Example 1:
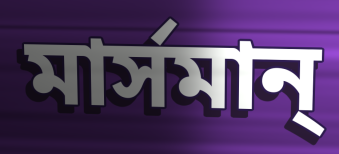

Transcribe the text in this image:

মার্সমান্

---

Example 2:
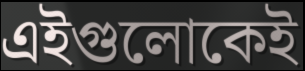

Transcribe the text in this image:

এইগুলোকেই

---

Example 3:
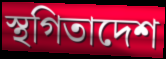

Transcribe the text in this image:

স্থগিতাদেশ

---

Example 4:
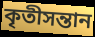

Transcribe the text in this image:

কৃতীসন্তান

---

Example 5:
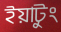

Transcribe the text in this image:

ইয়াটুং